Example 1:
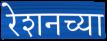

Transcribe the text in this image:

रेशनच्या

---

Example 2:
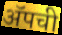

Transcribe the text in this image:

ॲपची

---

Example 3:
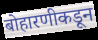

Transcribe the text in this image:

बोहारणीकडून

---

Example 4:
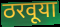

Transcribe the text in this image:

ठरवूया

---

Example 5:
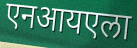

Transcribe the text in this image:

एनआयएला